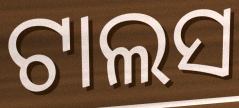
ଟାଲସ